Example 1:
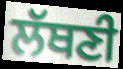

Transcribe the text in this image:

ਲੱਥਣੀ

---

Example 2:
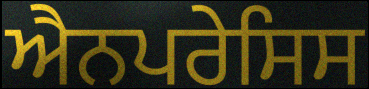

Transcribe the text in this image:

ਐਨਪਰੇਸਿਸ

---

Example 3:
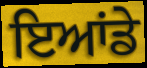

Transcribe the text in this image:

ਇਆਂਡੇ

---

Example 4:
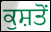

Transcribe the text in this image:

ਕੁਸ਼ਤੋਂ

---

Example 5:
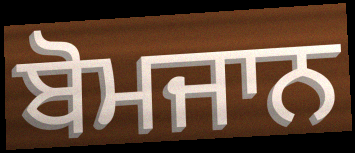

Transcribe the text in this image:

ਬੋਮਜਾਨ